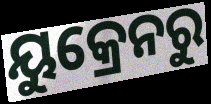
ୟୁକ୍ରେନରୁ